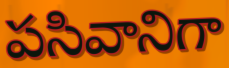
పసివానిగా